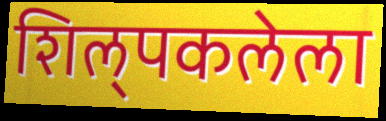
शिल्पकलेला